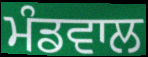
ਮੰਡਵਾਲ